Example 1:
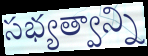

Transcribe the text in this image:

సభ్యత్వాన్ని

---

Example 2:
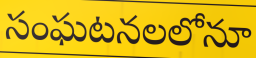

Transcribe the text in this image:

సంఘటనలలోనూ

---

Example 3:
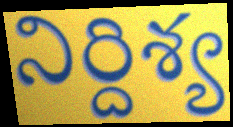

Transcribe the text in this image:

నిర్దిశ్య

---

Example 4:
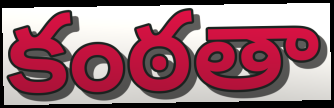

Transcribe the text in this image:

కంఠతా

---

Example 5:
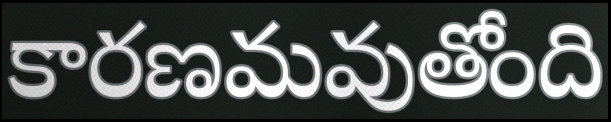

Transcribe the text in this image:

కారణమవుతోంది